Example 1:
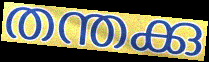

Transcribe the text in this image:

തന്തക്കു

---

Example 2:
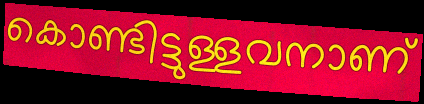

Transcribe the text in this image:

കൊണ്ടിട്ടുള്ളവനാണ്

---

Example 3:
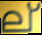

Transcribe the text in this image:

ല്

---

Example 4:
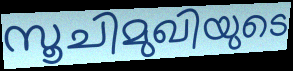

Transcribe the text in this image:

സൂചിമുഖിയുടെ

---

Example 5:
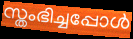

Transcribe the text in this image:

സ്തംഭിച്ചപ്പോൾ